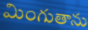
మింగుతాను